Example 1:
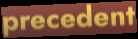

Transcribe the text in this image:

precedent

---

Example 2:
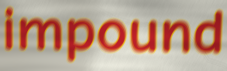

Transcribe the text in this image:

impound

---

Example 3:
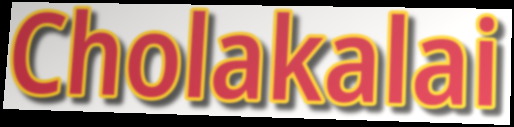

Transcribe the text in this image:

Cholakalai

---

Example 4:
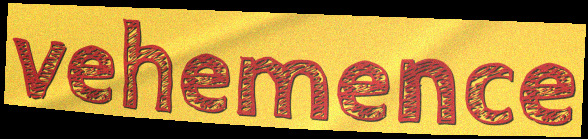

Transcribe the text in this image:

vehemence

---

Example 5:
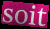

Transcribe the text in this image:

soit